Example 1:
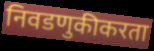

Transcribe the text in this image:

निवडणुकीकरता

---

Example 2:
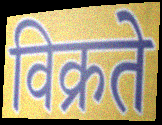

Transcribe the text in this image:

विक्रते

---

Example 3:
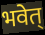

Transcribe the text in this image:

भवेत्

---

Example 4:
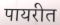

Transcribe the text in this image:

पायरीत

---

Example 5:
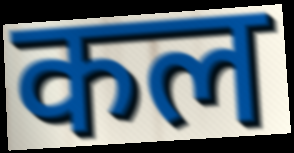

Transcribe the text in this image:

कल